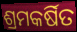
ଶ୍ରମକର୍ଷିତ